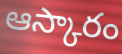
ఆస్కారం